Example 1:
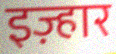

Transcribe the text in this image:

इज़्हार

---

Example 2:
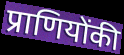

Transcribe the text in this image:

प्राणियोंकी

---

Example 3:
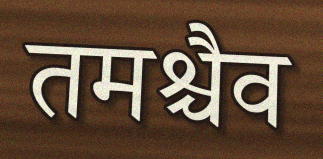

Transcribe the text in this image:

तमश्चैव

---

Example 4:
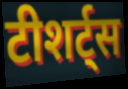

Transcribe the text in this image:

टीशर्ट्स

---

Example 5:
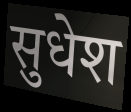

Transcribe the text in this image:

सुधेश